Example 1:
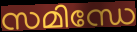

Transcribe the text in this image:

സമിന്ധേ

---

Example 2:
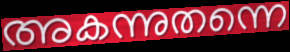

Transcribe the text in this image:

അകന്നുതന്നെ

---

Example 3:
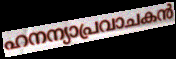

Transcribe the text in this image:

ഹനന്യാപ്രവാചകൻ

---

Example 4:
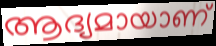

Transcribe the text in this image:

ആദ്യമായാണ്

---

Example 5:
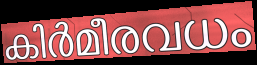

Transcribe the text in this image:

കിർമീരവധം